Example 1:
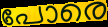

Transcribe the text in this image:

പോരെ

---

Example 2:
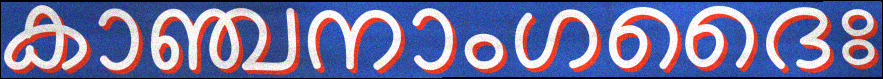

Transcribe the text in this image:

കാഞ്ചനാംഗദൈഃ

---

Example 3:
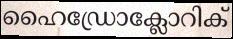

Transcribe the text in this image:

ഹൈഡ്രോക്ലോറിക്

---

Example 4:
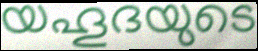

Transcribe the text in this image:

യഹൂദയുടെ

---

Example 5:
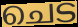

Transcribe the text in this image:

ചെട